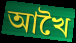
আখৈ